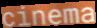
cinema